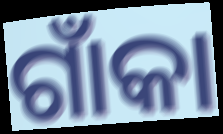
ଗାଁକା